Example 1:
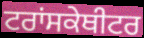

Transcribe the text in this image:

ਟਰਾਂਸਕੇਥੀਟਰ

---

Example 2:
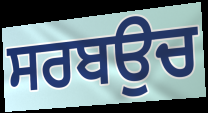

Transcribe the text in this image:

ਸਰਬਉਚ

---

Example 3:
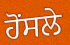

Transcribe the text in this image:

ਹੋਂਸਲੇ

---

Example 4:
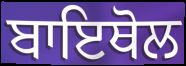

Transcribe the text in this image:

ਬਾਇਥੋਲ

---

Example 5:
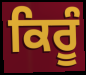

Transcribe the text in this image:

ਕਿਰੂੰ